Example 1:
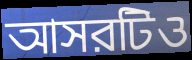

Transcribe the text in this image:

আসরটিও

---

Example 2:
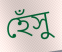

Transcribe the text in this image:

হেঁসু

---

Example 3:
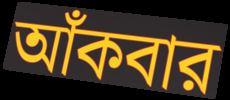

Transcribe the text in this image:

আঁকবার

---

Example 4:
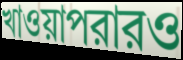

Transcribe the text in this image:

খাওয়াপরারও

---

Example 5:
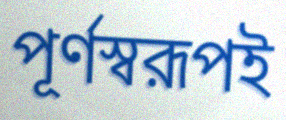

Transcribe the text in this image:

পূর্ণস্বরূপই